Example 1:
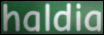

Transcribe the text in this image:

haldia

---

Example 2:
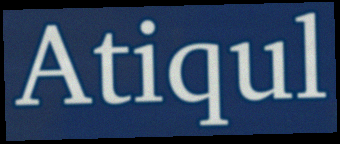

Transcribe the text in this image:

Atiqul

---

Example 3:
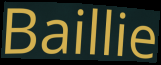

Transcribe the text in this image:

Baillie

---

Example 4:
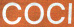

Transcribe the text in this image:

COCI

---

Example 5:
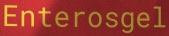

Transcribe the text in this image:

Enterosgel